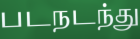
படநடந்து